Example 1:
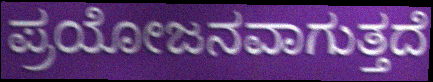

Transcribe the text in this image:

ಪ್ರಯೋಜನವಾಗುತ್ತದೆ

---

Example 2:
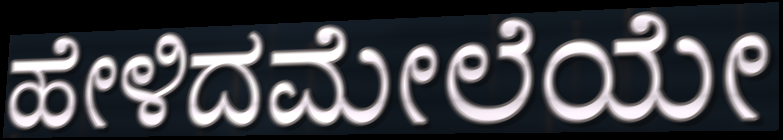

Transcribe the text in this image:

ಹೇಳಿದಮೇಲೆಯೇ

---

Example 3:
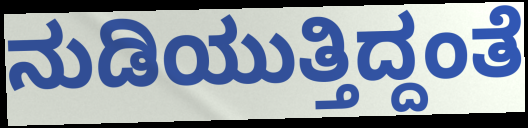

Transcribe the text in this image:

ನುಡಿಯುತ್ತಿದ್ದಂತೆ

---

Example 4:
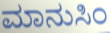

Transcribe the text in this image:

ಮಾನುಸಿಂ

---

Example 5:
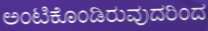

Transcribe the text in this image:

ಅಂಟಿಕೊಂಡಿರುವುದರಿಂದ